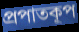
প্রপাতকূপ